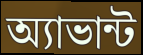
অ্যাভান্ট